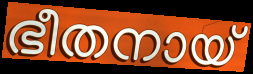
ഭീതനായ്